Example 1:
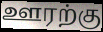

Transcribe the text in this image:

ஊரற்கு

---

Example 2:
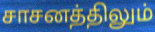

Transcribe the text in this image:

சாசனத்திலும்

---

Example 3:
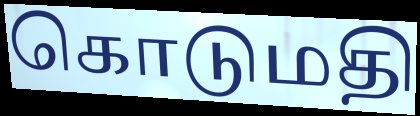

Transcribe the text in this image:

கொடுமதி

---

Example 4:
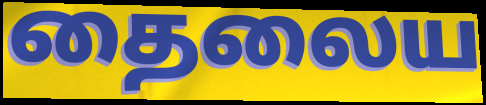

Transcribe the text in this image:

தைலைய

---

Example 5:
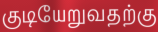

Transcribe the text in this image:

குடியேறுவதற்கு